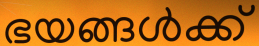
ഭയങ്ങൾക്ക്